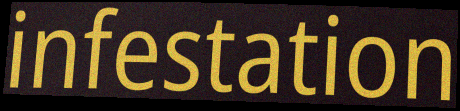
infestation